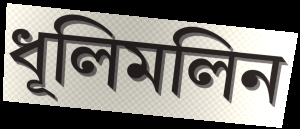
ধূলিমলিন